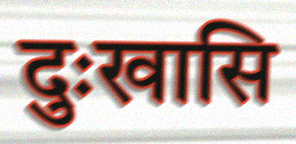
दुःखासि